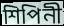
শিপিনী